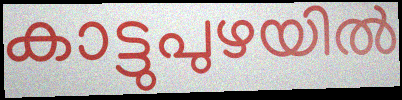
കാട്ടുപുഴയിൽ